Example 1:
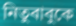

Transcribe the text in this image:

নিতুবাবুকে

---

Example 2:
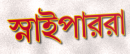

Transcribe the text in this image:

স্নাইপাররা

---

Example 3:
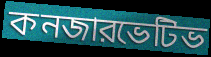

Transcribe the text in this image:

কনজারভেটিভ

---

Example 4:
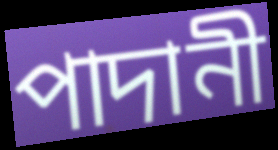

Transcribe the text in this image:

পাদানী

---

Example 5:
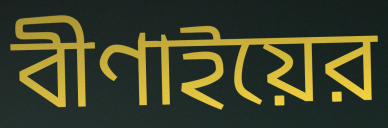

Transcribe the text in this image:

বীণাইয়ের